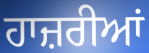
ਹਾਜ਼ਰੀਆਂ